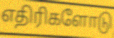
எதிரிகளோடு